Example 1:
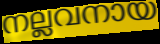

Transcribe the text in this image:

നല്ലവനായ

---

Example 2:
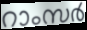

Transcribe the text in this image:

റാംസർ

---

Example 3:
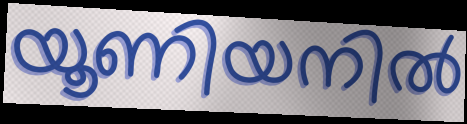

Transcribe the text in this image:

യൂണിയനിൽ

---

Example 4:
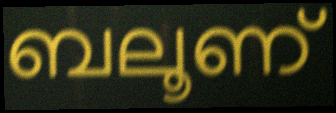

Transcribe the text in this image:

ബലൂണ്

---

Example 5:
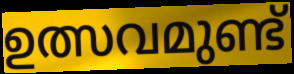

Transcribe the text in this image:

ഉത്സവമുണ്ട്